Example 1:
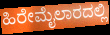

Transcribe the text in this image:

ಹಿರೇಮೈಲಾರದಲ್ಲಿ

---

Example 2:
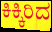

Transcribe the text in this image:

ಕಿಕ್ಕಿರಿದ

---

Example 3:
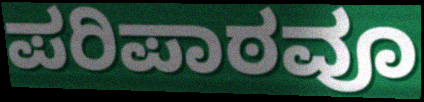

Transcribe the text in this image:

ಪರಿಪಾಠವೂ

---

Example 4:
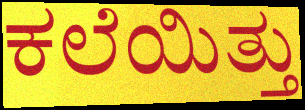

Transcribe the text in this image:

ಕಲೆಯಿತ್ತು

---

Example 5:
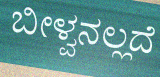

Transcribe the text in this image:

ಬೀಳ್ವನಲ್ಲದೆ